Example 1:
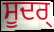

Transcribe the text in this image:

ਸੂਦਰ੍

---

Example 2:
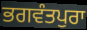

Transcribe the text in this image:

ਭਗਵੰਤਪੁਰਾ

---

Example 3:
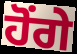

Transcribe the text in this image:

ਹੋਂਗੇ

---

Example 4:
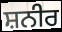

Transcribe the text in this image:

ਸ਼ਨੀਰ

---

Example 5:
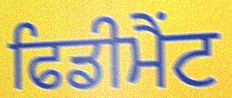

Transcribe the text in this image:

ਫਿਡੀਮੈਂਟ